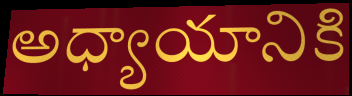
అధ్యాయానికి